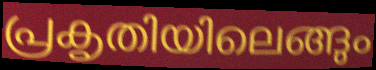
പ്രകൃതിയിലെങ്ങും